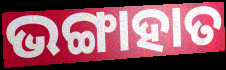
ଭଙ୍ଗାହାତ